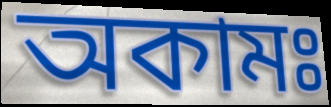
অকামঃ